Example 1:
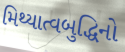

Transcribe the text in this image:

મિથ્યાત્વબુદ્ધિનો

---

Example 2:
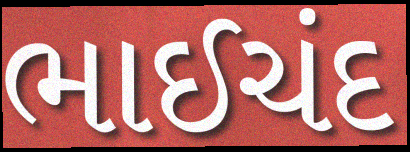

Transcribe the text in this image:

ભાઈચંદ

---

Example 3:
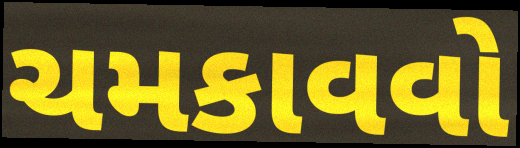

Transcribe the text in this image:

ચમકાવવો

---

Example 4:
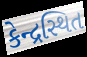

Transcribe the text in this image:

કેન્દ્રસ્થિત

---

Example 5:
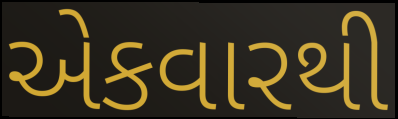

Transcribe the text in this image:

એકવારથી